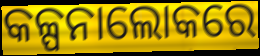
କଳ୍ପନାଲୋକରେ